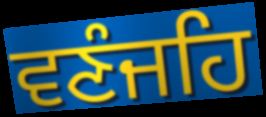
ਵਣੰਜਹਿ